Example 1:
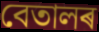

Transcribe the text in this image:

বেতালৰ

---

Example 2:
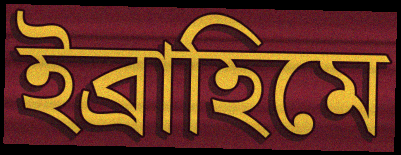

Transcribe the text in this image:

ইব্ৰাহিমে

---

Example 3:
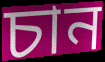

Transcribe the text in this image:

চান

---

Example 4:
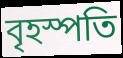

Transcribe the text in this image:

বৃহস্পতি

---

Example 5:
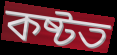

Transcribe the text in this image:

কষ্টত